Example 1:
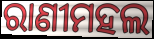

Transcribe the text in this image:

ରାଣୀମହଲ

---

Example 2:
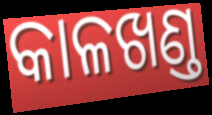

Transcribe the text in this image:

କାଳଖଣ୍ଡ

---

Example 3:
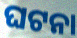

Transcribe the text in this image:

ଘଟନା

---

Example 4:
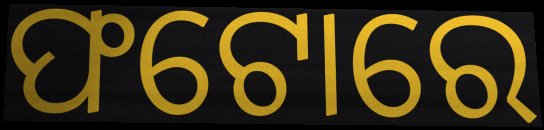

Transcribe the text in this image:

ଫଟୋରେ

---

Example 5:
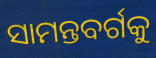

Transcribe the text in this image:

ସାମନ୍ତବର୍ଗକୁ